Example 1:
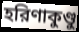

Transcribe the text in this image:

হরিণাকুণ্ডু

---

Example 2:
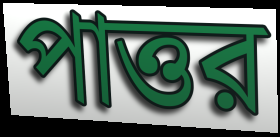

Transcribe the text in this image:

পাত্তর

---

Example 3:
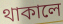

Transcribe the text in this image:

থাকালে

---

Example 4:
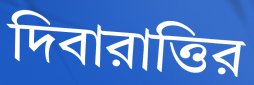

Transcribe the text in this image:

দিবারাত্তির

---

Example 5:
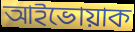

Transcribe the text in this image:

আইভোয়াক